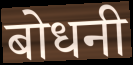
बोधनी